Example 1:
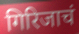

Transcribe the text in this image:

गिरिजाचं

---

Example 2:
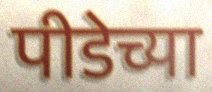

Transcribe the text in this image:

पीडेच्या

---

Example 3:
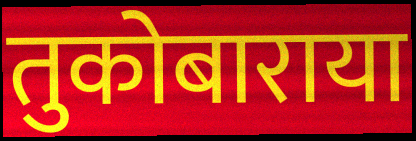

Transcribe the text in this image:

तुकोबाराया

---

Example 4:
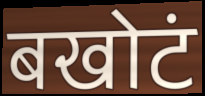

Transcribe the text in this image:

बखोटं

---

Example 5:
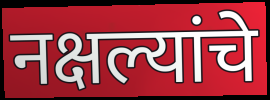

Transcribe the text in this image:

नक्षल्यांचे